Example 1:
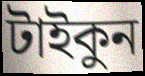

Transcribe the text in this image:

টাইকুন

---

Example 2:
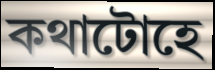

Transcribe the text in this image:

কথাটোহে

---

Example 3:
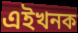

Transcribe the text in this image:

এইখনক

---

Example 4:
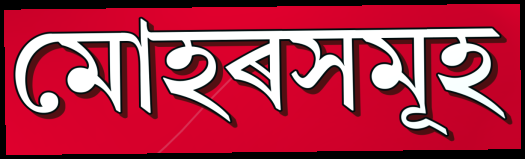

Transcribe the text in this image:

মোহৰসমূহ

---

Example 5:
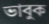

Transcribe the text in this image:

ভাবুক